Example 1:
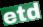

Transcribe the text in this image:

etd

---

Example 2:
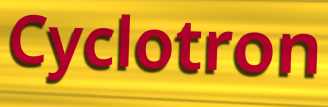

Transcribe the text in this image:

Cyclotron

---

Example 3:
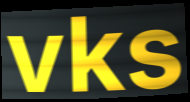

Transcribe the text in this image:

vks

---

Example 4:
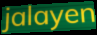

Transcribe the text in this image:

jalayen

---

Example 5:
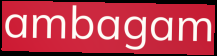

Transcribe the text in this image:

ambagam